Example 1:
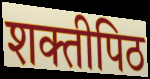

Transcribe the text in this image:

शक्तीपिठ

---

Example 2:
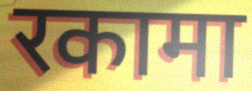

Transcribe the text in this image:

रकामा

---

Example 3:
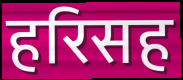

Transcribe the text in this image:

हरिसह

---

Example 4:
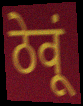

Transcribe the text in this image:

ठेवूं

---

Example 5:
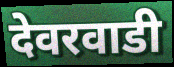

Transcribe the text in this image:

देवरवाडी